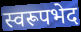
स्वरूपभेद